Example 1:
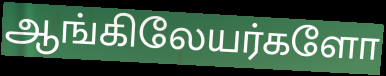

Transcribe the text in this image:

ஆங்கிலேயர்களோ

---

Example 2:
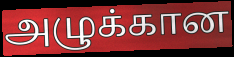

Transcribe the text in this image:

அழுக்கான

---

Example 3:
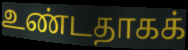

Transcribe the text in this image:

உண்டதாகக்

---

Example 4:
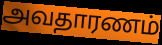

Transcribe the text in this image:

அவதாரணம்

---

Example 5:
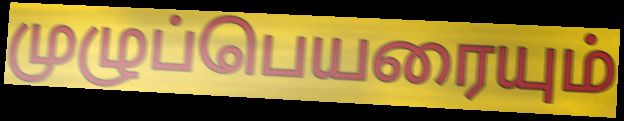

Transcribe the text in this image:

முழுப்பெயரையும்